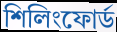
শিলিংফোর্ড